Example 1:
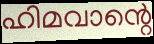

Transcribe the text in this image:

ഹിമവാന്റെ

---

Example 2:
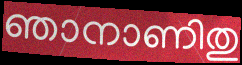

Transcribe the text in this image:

ഞാനാണിതു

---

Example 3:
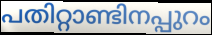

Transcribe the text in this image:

പതിറ്റാണ്ടിനപ്പുറം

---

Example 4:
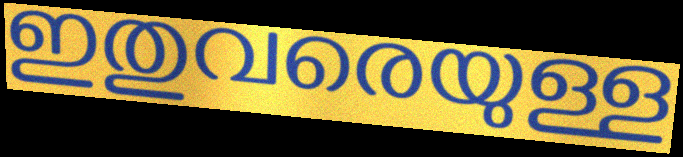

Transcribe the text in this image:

ഇതുവരെയുള്ള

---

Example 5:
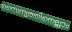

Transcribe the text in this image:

സൈന്യത്തിനെല്ലാം